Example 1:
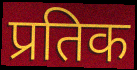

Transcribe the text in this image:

प्रतिक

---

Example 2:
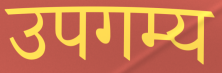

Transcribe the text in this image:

उपगम्य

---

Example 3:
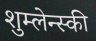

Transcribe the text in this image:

शुम्लेन्स्की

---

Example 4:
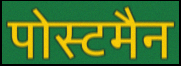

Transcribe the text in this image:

पोस्टमैन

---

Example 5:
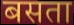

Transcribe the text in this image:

बसता